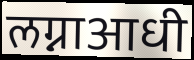
लग्नाआधी